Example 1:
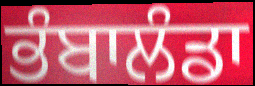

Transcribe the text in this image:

ਭੰਬਾਲੰਡਾ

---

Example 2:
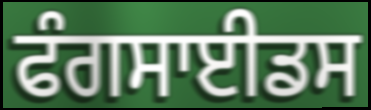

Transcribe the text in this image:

ਫੰਗਸਾਈਡਸ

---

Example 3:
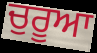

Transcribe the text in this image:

ਚੁਰੂਆ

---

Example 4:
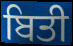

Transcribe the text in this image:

ਬਿਤੀ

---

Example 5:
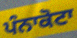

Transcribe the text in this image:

ਪੰਨਾਕੋਟਾ